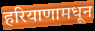
हरियाणामधून